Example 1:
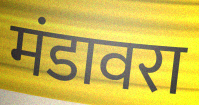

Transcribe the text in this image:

मंडावरा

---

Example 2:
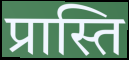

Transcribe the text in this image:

प्रास्ति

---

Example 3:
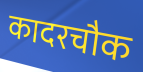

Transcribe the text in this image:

कादरचौक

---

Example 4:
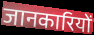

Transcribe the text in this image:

जानकारियों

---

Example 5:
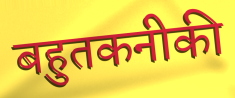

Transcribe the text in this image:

बहुतकनीकी